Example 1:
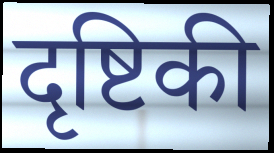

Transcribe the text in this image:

दृष्टिकी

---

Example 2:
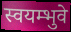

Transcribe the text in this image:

स्वयम्भुवे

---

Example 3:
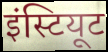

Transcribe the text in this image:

इंस्टियूट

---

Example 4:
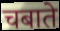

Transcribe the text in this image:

चबाते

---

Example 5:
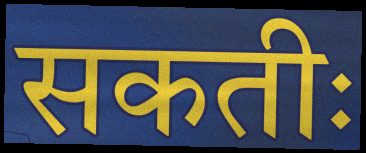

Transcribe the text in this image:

सकतीः